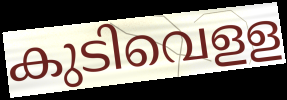
കുടിവെളള